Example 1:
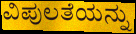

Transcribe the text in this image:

ವಿಪುಲತೆಯನ್ನು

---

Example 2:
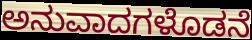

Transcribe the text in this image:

ಅನುವಾದಗಳೊಡನೆ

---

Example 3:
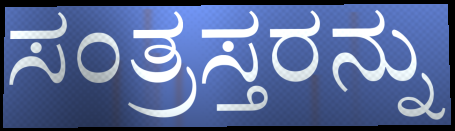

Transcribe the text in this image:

ಸಂತ್ರಸ್ತರನ್ನು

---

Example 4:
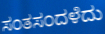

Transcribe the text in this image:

ಸಂತಸಂದಳೆದು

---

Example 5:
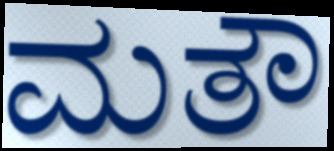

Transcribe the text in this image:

ಮತೌ